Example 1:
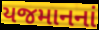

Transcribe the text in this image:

યજમાનનાં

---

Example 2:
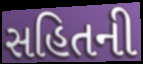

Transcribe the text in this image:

સહિતની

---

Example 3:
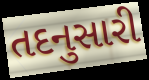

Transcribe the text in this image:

તદનુસારી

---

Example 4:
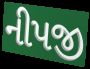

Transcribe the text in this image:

નીપજી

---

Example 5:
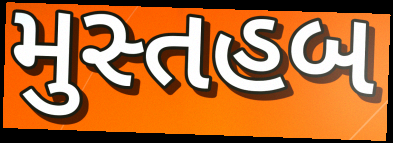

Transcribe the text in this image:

મુસ્તહબ